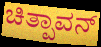
ಚಿತ್ಪಾವನ್